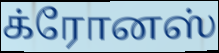
க்ரோனஸ்